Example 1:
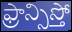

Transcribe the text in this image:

ఫ్రాన్సిస్తో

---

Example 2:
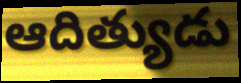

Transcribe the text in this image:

ఆదిత్యుడు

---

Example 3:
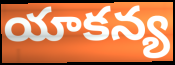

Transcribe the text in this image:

యాకన్య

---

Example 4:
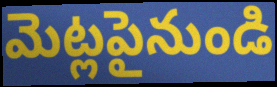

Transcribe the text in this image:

మెట్లపైనుండి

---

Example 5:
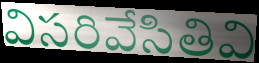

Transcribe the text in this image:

విసరివేసితివి